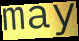
may